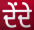
ਦੇਂਦੇ